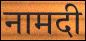
नामदी